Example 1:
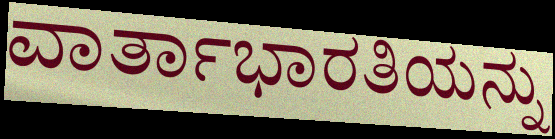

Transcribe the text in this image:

ವಾರ್ತಾಭಾರತಿಯನ್ನು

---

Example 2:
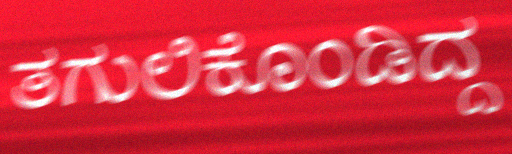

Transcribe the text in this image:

ತಗುಲಿಕೊಂಡಿದ್ದ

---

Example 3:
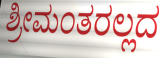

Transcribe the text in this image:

ಶ್ರೀಮಂತರಲ್ಲದ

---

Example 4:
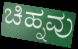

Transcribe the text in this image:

ಚಿಹ್ನವು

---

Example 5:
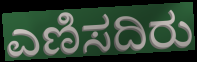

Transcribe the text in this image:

ಎಣಿಸದಿರು